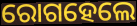
ରୋଗହେଲେ